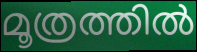
മൂത്രത്തിൽ